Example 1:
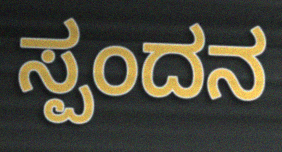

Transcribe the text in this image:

ಸ್ಪಂದನ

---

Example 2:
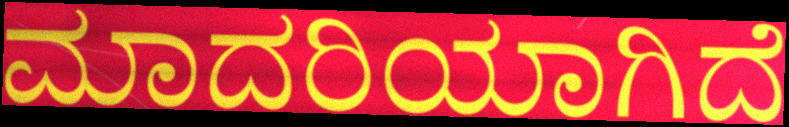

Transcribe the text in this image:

ಮಾದರಿಯಾಗಿದೆ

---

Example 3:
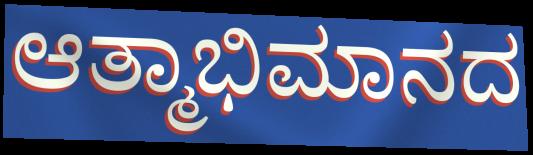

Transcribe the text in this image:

ಆತ್ಮಾಭಿಮಾನದ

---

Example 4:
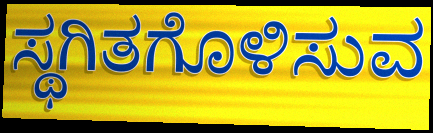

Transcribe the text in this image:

ಸ್ಥಗಿತಗೊಳಿಸುವ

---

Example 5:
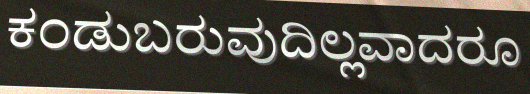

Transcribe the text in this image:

ಕಂಡುಬರುವುದಿಲ್ಲವಾದರೂ